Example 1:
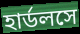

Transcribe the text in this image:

হার্ডলসে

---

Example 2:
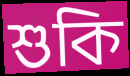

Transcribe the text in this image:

শুকি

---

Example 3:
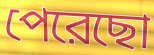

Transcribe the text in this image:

পেরেছো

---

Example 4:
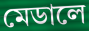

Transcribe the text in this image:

মেডালে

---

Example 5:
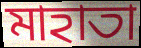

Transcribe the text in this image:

মাহাতা